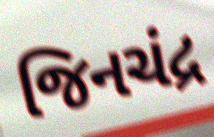
જિનચંદ્ર